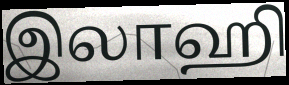
இலாஹி